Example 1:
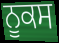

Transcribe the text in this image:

ਨੂਕਸ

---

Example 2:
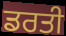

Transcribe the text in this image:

ਡਰਤੀ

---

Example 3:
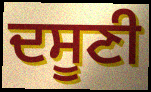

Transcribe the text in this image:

ਦਸੂਣੀ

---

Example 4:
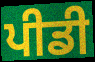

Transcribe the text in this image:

ਪੀਡੀ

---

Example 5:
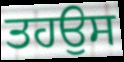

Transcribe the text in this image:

ਤਹਉਸ